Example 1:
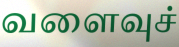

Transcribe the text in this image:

வளைவுச்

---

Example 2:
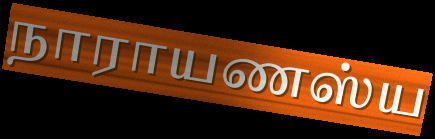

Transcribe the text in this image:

நாராயணஸ்ய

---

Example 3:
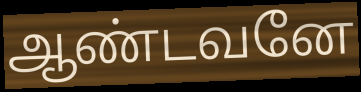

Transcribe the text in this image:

ஆண்டவனே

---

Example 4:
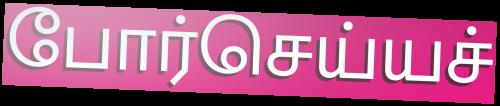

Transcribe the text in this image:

போர்செய்யச்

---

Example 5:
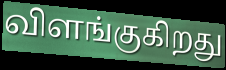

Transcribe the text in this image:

விளங்குகிறது